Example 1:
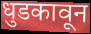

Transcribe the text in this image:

धुडकावून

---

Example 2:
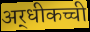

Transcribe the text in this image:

अर्धीकच्ची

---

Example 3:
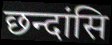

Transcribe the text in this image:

छन्दांसि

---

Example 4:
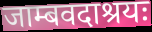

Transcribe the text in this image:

जाम्बवदाश्रयः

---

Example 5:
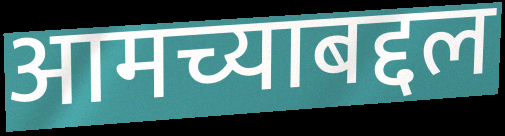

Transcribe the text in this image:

आमच्याबद्दल